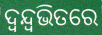
ଦ୍ୱନ୍ଦ୍ୱଭିତରେ